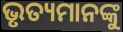
ଭୃତ୍ୟମାନଙ୍କୁ